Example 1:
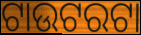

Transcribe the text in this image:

ଟାଉଟରଟା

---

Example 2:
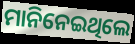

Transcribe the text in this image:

ମାନିନେଇଥିଲେ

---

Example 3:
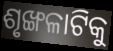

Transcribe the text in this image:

ଶୃଙ୍ଖଳାଟିକୁ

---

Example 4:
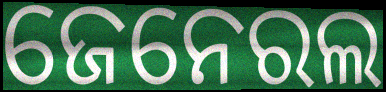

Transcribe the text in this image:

ଜେନେରଲ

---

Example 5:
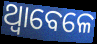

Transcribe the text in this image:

ଥ୍ବାବେଳେ